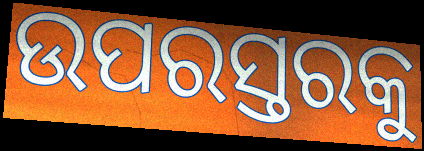
ଉପରସ୍ତରକୁ